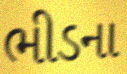
ભીડના